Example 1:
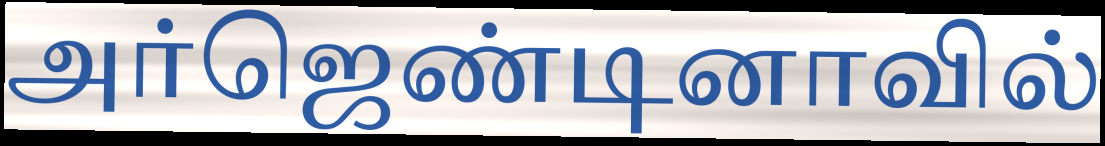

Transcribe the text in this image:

அர்ஜெண்டினாவில்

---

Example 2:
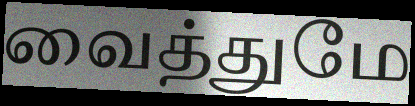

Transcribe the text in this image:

வைத்துமே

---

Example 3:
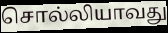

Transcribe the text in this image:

சொல்லியாவது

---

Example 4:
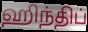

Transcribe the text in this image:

ஹிந்திப்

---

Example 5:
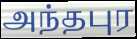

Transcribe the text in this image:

அந்தபுர